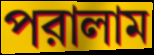
পরালাম